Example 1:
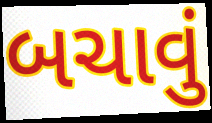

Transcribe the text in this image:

બચાવું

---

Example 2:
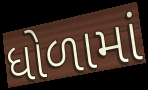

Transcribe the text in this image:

ધોળામાં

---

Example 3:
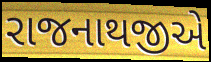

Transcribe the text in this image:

રાજનાથજીએ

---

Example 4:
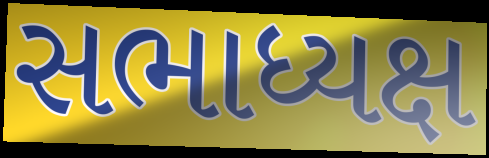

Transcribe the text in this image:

સભાધ્યક્ષ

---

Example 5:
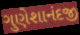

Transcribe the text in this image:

ગુણેશાનંદજી